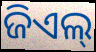
ଜିଏଲ୍